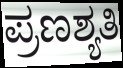
ಪ್ರಣಶ್ಯತಿ